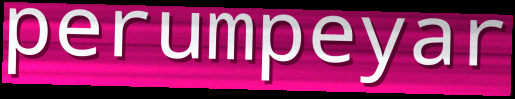
perumpeyar